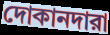
দোকানদারা